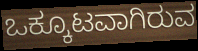
ಒಕ್ಕೂಟವಾಗಿರುವ